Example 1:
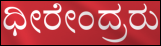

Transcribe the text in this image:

ಧೀರೇಂದ್ರರು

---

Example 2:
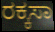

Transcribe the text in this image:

ರಕ್ಕಸಾ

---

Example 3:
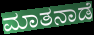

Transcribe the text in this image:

ಮಾತನಾಡೆ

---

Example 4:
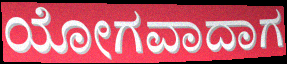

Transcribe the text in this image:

ಯೋಗವಾದಾಗ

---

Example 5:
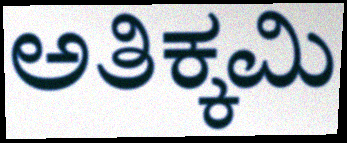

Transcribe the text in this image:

ಅತಿಕ್ಕಮಿ